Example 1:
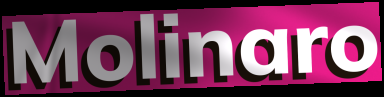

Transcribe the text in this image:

Molinaro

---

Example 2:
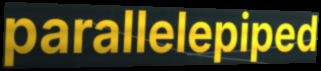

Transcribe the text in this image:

parallelepiped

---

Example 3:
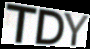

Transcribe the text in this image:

TDY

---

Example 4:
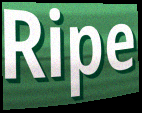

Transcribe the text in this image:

Ripe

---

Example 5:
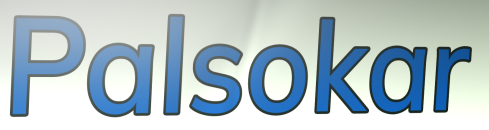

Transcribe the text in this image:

Palsokar